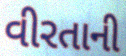
વીરતાની